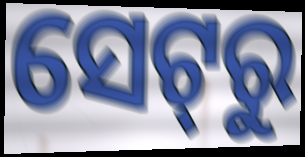
ସେଟ୍‌ରୁ